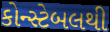
કોન્સ્ટેબલથી